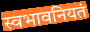
स्वभावनियतं